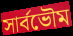
সার্বভৌম